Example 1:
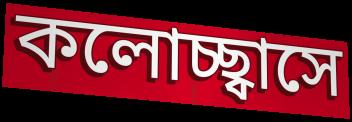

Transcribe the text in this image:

কলোচ্ছ্বাসে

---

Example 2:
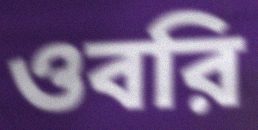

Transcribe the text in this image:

ওবরি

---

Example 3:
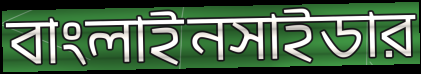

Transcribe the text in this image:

বাংলাইনসাইডার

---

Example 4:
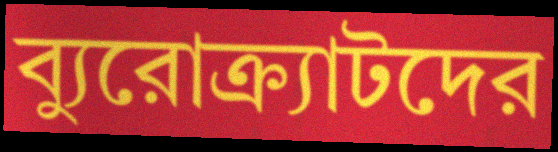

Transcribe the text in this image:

ব্যুরোক্র্যাটদের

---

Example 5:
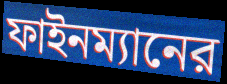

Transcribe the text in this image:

ফাইনম্যানের